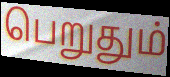
பெறுதும்